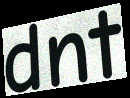
dnt